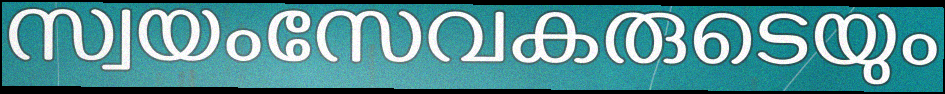
സ്വയംസേവകരുടെയും